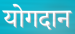
योगदान